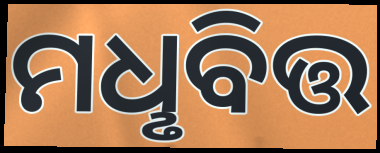
ମଧୢବିତ୍ତ